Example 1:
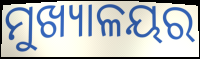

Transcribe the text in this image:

ମୁଖ୍ୟାଳୟର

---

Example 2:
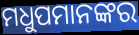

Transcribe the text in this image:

ମଧୁପମାନଙ୍କର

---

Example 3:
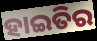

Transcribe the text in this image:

ହାଇତିର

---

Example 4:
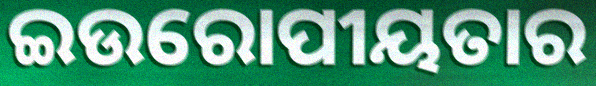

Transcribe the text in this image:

ଇଉରୋପୀୟତାର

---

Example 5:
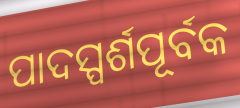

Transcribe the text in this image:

ପାଦସ୍ପର୍ଶପୂର୍ବକ